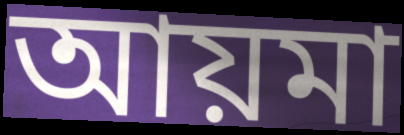
আয়মা